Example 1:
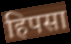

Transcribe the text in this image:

हिपसा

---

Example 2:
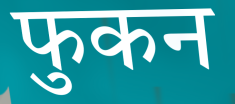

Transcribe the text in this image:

फुकन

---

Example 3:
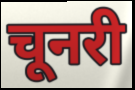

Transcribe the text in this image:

चूनरी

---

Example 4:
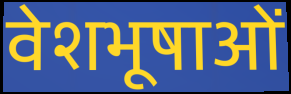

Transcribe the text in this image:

वेशभूषाओं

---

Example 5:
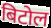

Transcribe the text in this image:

बिटोल